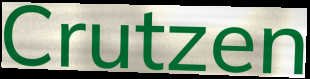
Crutzen